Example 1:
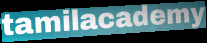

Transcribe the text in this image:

tamilacademy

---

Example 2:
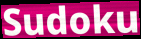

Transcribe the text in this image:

Sudoku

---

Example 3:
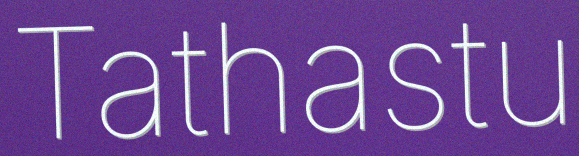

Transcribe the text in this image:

Tathastu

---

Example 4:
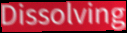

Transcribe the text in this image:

Dissolving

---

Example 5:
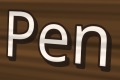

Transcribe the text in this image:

Pen